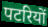
पटरियों